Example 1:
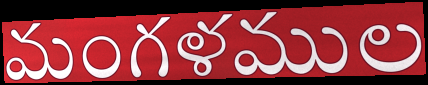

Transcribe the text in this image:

మంగళముల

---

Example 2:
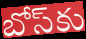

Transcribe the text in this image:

బోస్‌కు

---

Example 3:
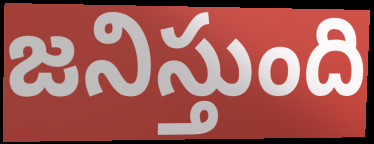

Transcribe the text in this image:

జనిస్తుంది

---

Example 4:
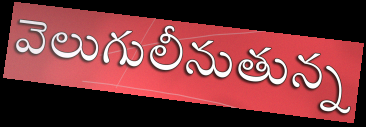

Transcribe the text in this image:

వెలుగులీనుతున్న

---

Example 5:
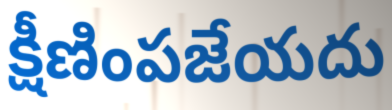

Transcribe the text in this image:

క్షీణింపజేయదు